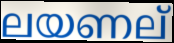
ലയണല്